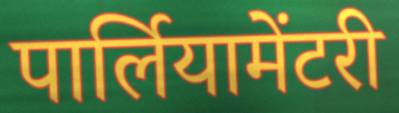
पार्लियामेंटरी